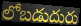
లోబడుదురు